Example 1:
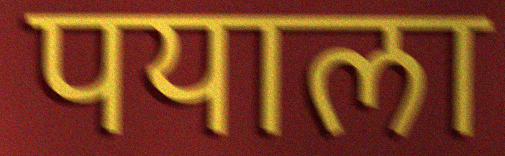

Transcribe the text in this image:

पयाला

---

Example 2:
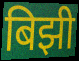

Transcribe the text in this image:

बिझी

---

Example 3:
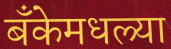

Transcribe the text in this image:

बँकेमधल्या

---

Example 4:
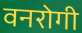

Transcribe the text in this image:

वनरोगी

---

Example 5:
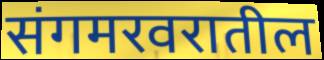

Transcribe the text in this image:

संगमरवरातील